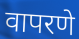
वापरणे